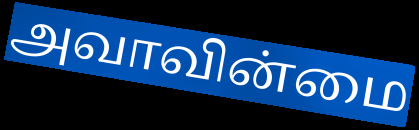
அவாவின்மை